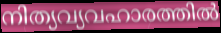
നിത്യവ്യവഹാരത്തിൽ